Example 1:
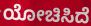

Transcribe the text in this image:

ಯೋಚಿಸಿದೆ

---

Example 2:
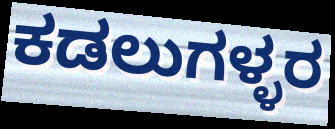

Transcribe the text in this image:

ಕಡಲುಗಳ್ಳರ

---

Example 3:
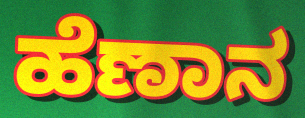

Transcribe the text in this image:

ಹೆಣಾನ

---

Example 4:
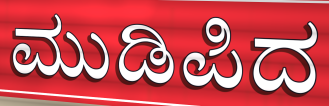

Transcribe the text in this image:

ಮುಡಿಪಿದ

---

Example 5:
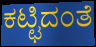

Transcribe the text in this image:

ಕಟ್ಟಿದಂತೆ